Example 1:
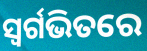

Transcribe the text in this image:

ସ୍ଵର୍ଗଭିତରେ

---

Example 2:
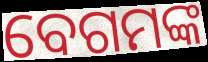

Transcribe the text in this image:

ବେଗମଙ୍କ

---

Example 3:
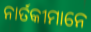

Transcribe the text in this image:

ନାର୍ତକୀମାନେ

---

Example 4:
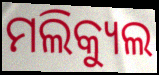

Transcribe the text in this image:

ମଲିକ୍ୟୁଲ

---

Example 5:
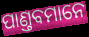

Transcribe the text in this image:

ପାଣ୍ତବମାନେ